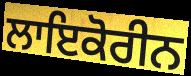
ਲਾਇਕੋਰੀਨ